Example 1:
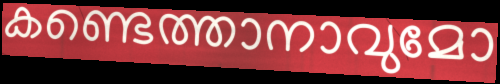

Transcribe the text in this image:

കണ്ടെത്താനാവുമോ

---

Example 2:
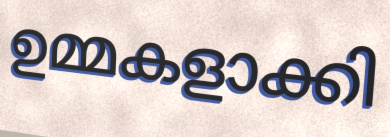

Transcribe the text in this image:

ഉമ്മകളാക്കി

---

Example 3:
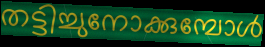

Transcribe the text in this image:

തട്ടിച്ചുനോക്കുമ്പോൾ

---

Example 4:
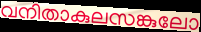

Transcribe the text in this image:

വനിതാകുലസങ്കുലോ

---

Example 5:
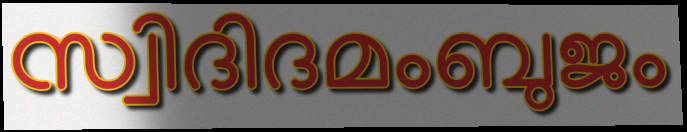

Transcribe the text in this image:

സ്വിദിദമംബുജം